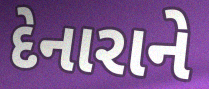
દેનારાને